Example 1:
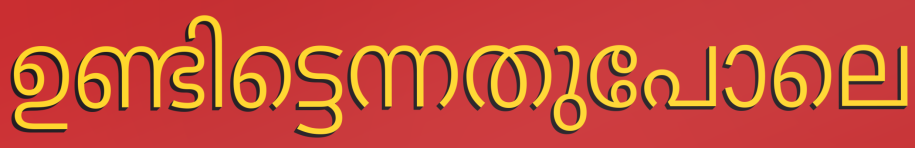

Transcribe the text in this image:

ഉണ്ടിട്ടെന്നതുപോലെ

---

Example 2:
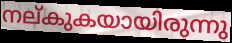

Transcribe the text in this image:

നല്കുകയായിരുന്നു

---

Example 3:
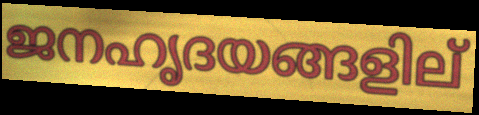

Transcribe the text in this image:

ജനഹൃദയങ്ങളില്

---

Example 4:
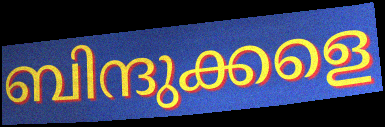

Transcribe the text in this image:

ബിന്ദുക്കളെ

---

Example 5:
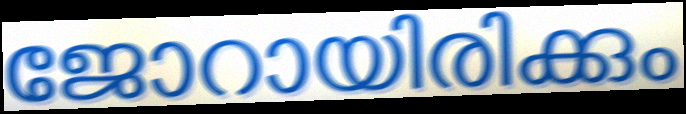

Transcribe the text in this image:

ജോറായിരിക്കും